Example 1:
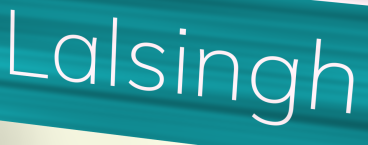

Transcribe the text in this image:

Lalsingh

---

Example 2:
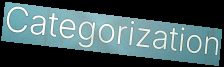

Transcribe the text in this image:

Categorization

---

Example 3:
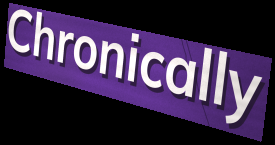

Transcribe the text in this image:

Chronically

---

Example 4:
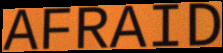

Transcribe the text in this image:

AFRAID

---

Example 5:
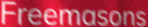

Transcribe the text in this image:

Freemasons